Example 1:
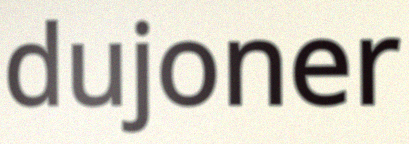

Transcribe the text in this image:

dujoner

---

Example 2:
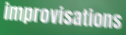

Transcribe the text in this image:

improvisations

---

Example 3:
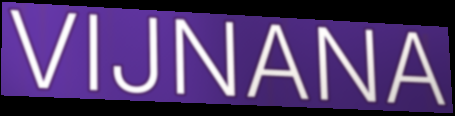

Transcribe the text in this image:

VIJNANA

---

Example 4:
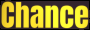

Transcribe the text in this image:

Chance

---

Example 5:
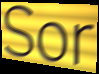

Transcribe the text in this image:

Sor